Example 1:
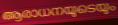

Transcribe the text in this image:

ആരാധനയുടെയും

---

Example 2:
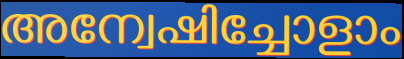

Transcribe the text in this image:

അന്വേഷിച്ചോളാം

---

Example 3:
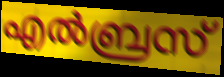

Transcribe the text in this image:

എൽബ്രസ്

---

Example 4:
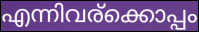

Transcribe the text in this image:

എന്നിവര്ക്കൊപ്പം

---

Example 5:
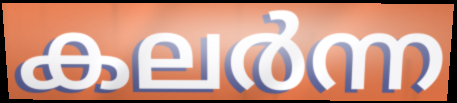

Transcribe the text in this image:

കലർന്ന